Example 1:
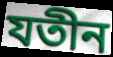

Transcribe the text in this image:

যতীন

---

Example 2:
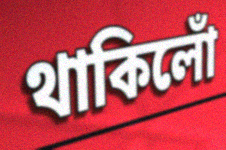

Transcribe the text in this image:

থাকিলোঁ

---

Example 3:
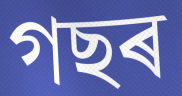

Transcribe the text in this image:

গছৰ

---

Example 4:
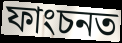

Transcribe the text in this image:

ফাংচনত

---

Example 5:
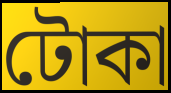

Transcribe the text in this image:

টোকা